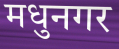
मधुनगर